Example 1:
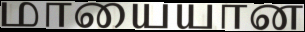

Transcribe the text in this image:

மாயையான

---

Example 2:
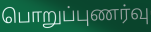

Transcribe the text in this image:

பொறுப்புணர்வு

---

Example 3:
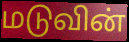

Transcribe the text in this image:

மடுவின்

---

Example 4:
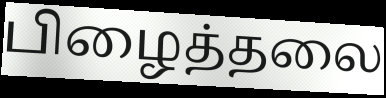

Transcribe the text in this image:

பிழைத்தலை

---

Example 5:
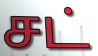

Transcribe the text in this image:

சட்